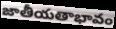
జాతీయతాభావం